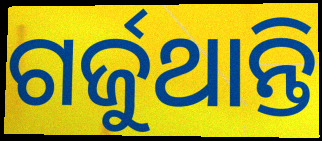
ଗର୍ଜୁଥାନ୍ତି